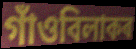
গাঁওবিলাকৰ